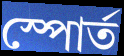
স্পোর্ত